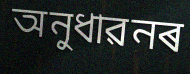
অনুধাৱনৰ